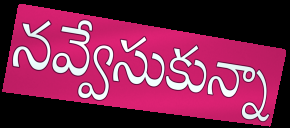
నవ్వేసుకున్నా